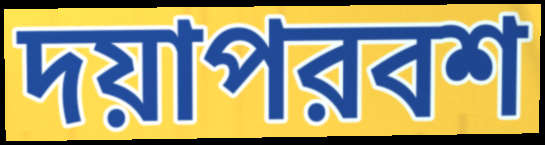
দয়াপরবশ